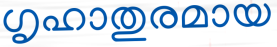
ഗൃഹാതുരമായ